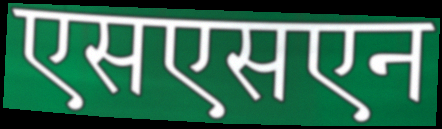
एसएसएन